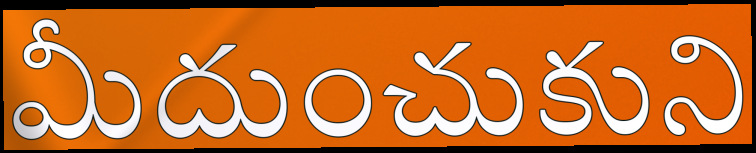
మీదుంచుకుని